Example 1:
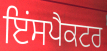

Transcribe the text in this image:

ਇਂਸਪੈਕਟਰ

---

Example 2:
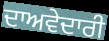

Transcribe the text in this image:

ਦਾਅਵੇਦਾਰੀ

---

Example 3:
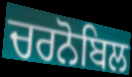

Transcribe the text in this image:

ਚਰਨੋਬਿਲ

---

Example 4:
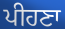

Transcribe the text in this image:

ਪੀਹਣਾ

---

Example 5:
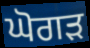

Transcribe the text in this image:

ਘੋਗੜ